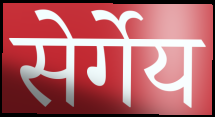
सेर्गेय